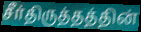
சீர்திருத்தத்தின்